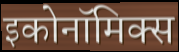
इकोनॉमिक्स